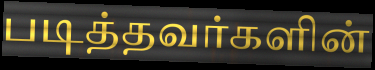
படித்தவர்களின்